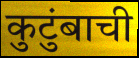
कुटुंबाची